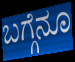
ಬಗ್ಗೆನೂ